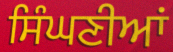
ਸਿੰਘਣੀਆਂ